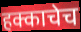
हक्काचेच